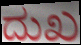
ದುಖ